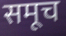
समूच